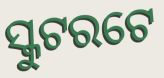
ସ୍କୁଟରଟେ